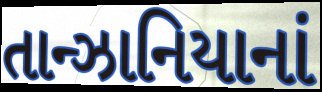
તાન્ઝાનિયાનાં